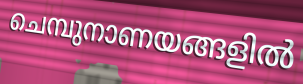
ചെമ്പുനാണയങ്ങളിൽ